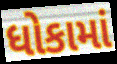
ધોકામાં